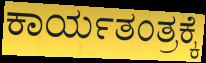
ಕಾರ್ಯತಂತ್ರಕ್ಕೆ